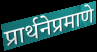
प्रार्थनेप्रमाणे